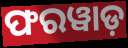
ଫରୱାଡ଼